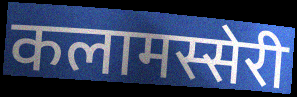
कलामस्सेरी